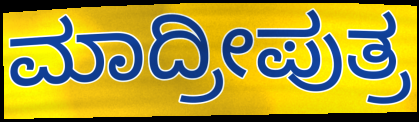
ಮಾದ್ರೀಪುತ್ರ